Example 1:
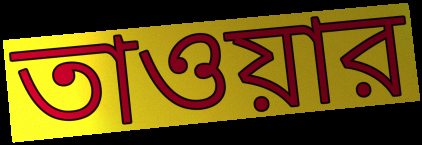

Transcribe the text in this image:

তাওয়ার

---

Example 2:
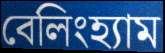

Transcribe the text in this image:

বেলিংহ্যাম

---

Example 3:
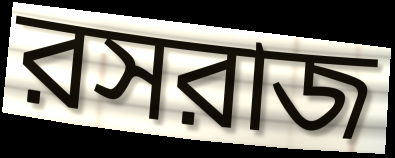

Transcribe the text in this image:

রসরাজ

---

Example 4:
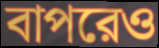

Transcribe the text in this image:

বাপরেও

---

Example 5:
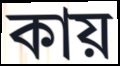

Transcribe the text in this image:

কায়